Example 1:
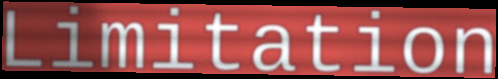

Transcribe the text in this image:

Limitation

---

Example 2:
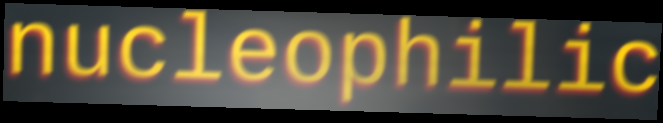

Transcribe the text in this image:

nucleophilic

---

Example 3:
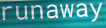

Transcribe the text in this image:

runaway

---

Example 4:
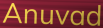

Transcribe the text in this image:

Anuvad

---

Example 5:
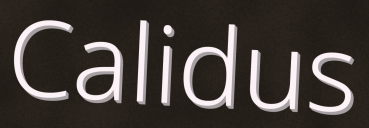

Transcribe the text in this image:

Calidus